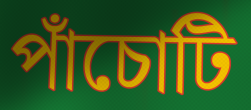
পাঁচোটি